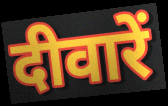
दीवारें